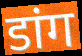
डांग